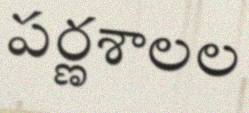
పర్ణశాలల